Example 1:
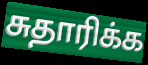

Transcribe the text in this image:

சுதாரிக்க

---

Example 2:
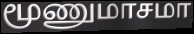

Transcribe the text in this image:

மூணுமாசமா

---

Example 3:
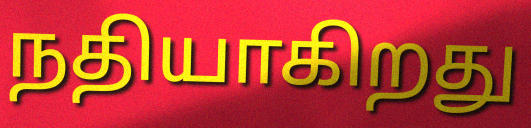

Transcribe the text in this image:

நதியாகிறது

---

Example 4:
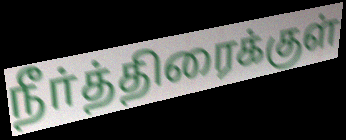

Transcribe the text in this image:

நீர்த்திரைக்குள்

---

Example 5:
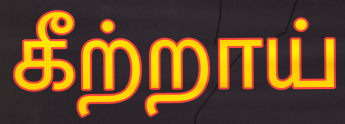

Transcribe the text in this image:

கீற்றாய்